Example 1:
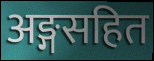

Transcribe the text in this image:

अङ्गसहित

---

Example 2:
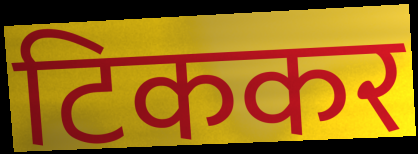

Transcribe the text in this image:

टिककर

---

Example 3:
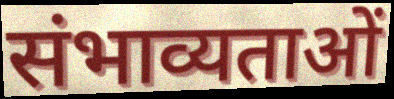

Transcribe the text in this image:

संभाव्यताओं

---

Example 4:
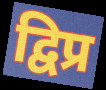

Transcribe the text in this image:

द्विप्र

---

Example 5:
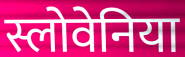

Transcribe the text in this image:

स्लोवेनिया